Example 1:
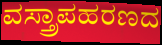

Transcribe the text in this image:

ವಸ್ತ್ರಾಪಹರಣದ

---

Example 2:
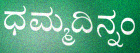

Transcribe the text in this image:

ಧಮ್ಮದಿನ್ನಂ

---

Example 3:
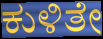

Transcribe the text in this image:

ಕುಳಿತೇ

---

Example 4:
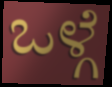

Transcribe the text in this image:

ಒಳ್ಗೆ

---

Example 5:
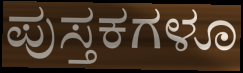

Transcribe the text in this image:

ಪುಸ್ತಕಗಳೂ